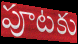
పూటకు